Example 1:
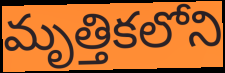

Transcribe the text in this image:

మృత్తికలోని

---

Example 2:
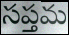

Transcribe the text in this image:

సప్తమ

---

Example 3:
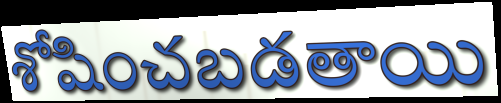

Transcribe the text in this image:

శోషించబడతాయి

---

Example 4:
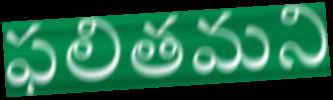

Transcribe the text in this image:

ఫలితమని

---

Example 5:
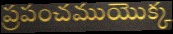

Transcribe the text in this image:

ప్రపంచముయొక్క